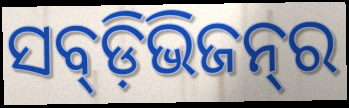
ସବ୍‍ଡ଼ିଭିଜନ୍‍ର